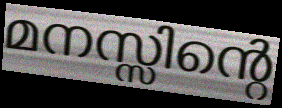
മനസ്സിന്റെ